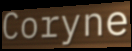
Coryne